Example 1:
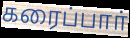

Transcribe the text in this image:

கரைப்பார்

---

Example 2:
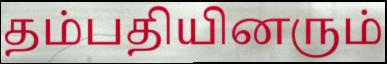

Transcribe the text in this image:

தம்பதியினரும்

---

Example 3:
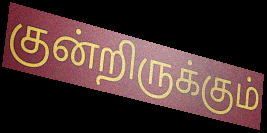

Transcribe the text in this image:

குன்றிருக்கும்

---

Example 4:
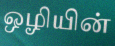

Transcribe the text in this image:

ஒழியின்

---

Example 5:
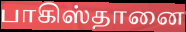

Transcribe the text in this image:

பாகிஸ்தானை